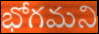
భోగమని